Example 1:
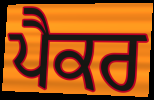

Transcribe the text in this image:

ਪੈਕਰ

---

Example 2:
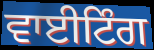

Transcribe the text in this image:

ਵਾਈਟਿੰਗ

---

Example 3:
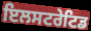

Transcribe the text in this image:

ਇਲਸਟਰੇਟਿਡ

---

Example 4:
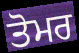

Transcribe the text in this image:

ਤੋਮਰ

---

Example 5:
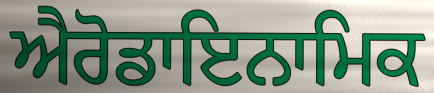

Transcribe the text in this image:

ਐਰੋਡਾਇਨਾਮਿਕ